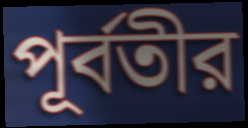
পূর্বতীর